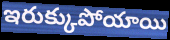
ఇరుక్కుపోయాయి